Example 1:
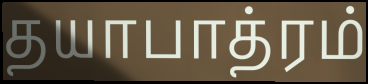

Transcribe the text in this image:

தயாபாத்ரம்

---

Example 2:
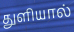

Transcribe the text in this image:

துளியால்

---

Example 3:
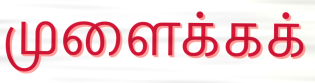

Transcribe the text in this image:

முளைக்கக்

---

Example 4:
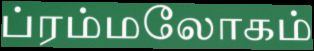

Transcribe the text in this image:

ப்ரம்மலோகம்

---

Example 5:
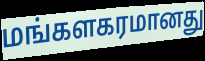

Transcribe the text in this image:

மங்களகரமானது